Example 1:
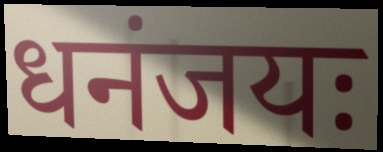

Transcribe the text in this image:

धनंजयः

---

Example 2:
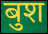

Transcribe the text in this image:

बुश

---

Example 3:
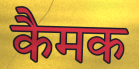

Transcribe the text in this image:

कैमक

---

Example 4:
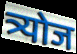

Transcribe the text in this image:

त्र्योज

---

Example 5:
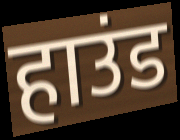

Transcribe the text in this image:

हाउंड